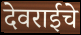
देवराईचे